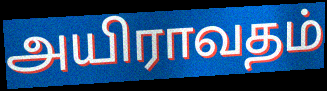
அயிராவதம்